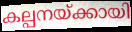
കല്പനയ്ക്കായി